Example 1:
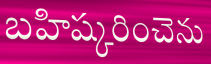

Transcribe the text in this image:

బహిష్కరించెను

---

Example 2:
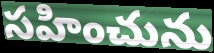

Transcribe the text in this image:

సహించును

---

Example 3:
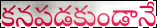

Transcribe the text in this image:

కనపడకుండానే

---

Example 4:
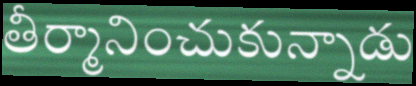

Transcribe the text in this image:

తీర్మానించుకున్నాడు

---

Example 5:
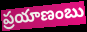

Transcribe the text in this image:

ప్రయాణంబు